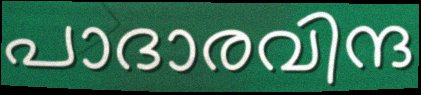
പാദാരവിന്ദ